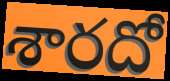
శారదో